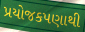
પ્રયોજકપણાથી